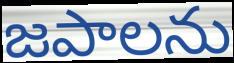
జపాలను